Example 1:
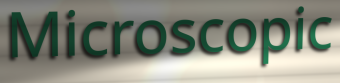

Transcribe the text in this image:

Microscopic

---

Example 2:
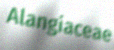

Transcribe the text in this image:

Alangiaceae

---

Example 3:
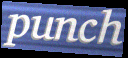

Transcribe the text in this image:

punch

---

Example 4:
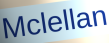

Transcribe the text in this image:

Mclellan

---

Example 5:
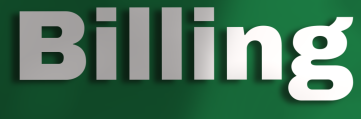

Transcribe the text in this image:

Billing